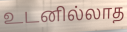
உடனில்லாத